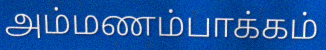
அம்மணம்பாக்கம்